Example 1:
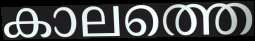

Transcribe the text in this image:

കാലത്തെ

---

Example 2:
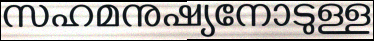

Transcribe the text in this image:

സഹമനുഷ്യനോടുള്ള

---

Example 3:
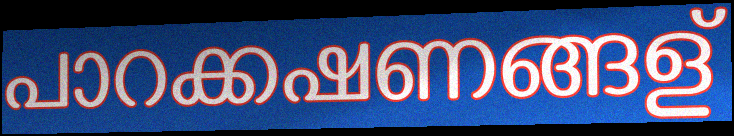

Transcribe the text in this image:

പാറക്കഷണങ്ങള്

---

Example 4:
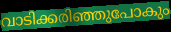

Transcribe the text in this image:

വാടിക്കരിഞ്ഞുപോകും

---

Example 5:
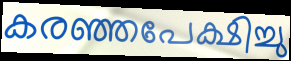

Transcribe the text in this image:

കരഞ്ഞപേക്ഷിച്ചു